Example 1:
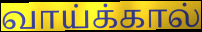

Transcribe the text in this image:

வாய்க்கால்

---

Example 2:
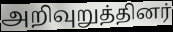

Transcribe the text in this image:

அறிவுறுத்தினர்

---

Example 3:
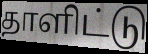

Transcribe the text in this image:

தாளிட்டு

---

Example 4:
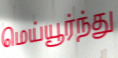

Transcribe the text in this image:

மெய்யூர்ந்து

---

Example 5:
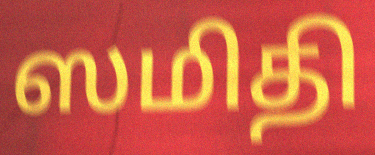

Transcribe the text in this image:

ஸமிதி